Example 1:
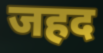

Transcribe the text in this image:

जहद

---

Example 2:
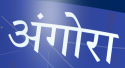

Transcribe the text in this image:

अंगोरा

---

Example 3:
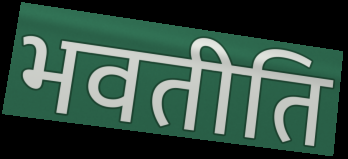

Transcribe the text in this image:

भवतीति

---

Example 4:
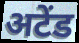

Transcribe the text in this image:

अटेंड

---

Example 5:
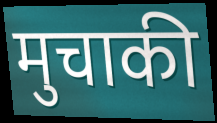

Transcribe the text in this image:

मुचाकी